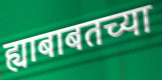
ह्याबाबतच्या